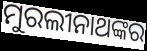
ମୁରଲୀନାଥଙ୍କର